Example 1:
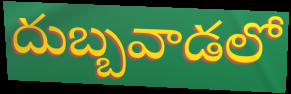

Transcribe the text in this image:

దుబ్బవాడలో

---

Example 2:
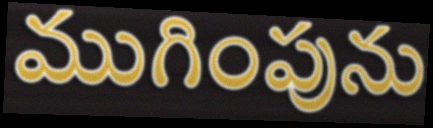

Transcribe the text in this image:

ముగింపును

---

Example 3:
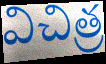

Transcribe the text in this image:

విచిత్ర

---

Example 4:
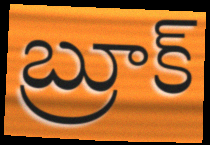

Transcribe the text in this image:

బ్రూక్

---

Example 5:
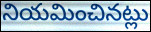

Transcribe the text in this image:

నియమించినట్లు